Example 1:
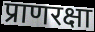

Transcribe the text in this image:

प्राणरक्षा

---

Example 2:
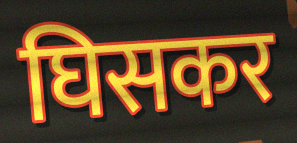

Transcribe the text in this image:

घिसकर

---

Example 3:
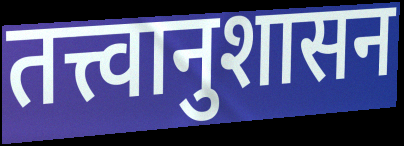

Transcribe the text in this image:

तत्त्वानुशासन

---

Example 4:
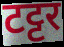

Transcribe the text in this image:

टट्टर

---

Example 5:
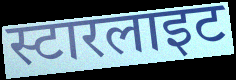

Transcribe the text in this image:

स्टारलाइट